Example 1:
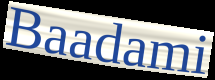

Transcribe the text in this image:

Baadami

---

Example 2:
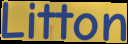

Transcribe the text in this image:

Litton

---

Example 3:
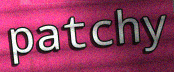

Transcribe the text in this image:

patchy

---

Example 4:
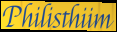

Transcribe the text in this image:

Philisthiim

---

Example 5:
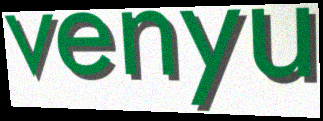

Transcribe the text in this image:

venyu